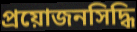
প্রয়োজনসিদ্ধি